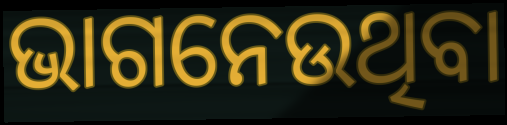
ଭାଗନେଉଥିବା